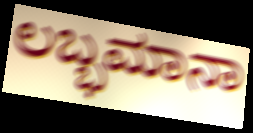
ಲಬ್ಭಮಾನಾ